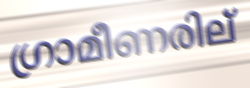
ഗ്രാമീണരില്